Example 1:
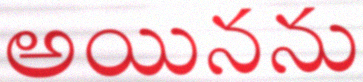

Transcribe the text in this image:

అయినను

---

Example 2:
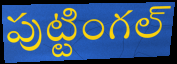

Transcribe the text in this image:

పుట్టింగల్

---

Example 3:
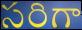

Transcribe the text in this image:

సరిగా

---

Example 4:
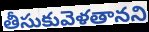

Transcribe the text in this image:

తీసుకువెళతానని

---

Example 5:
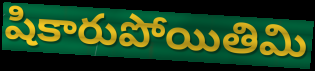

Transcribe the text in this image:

షికారుపోయితిమి